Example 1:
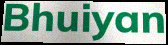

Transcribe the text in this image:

Bhuiyan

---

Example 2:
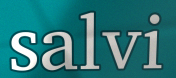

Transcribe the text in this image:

salvi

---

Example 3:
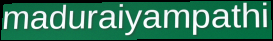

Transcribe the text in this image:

maduraiyampathi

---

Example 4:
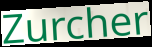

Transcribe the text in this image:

Zurcher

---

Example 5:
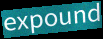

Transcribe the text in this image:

expound